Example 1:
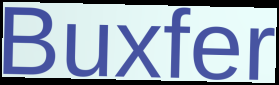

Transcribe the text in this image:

Buxfer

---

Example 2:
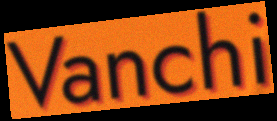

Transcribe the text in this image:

Vanchi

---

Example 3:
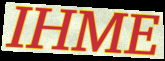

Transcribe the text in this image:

IHME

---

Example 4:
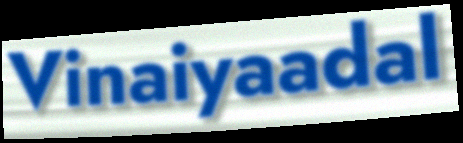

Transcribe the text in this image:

Vinaiyaadal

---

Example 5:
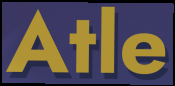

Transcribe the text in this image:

Atle